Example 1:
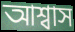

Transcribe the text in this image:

আশ্বাস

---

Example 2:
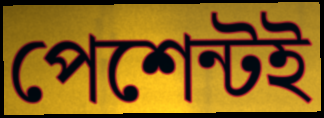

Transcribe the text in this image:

পেশেন্টই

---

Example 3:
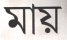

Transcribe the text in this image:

মায়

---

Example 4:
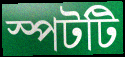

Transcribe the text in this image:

স্পটটি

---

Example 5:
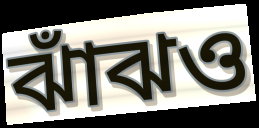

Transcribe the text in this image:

ঝাঁঝও